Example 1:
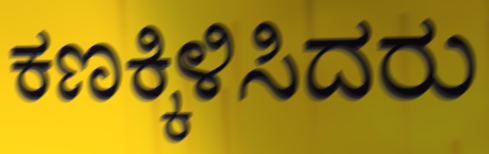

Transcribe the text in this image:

ಕಣಕ್ಕಿಳಿಸಿದರು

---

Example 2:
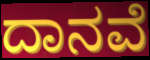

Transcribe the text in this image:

ದಾನವೆ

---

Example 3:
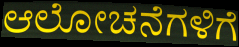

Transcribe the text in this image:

ಆಲೋಚನೆಗಳಿಗೆ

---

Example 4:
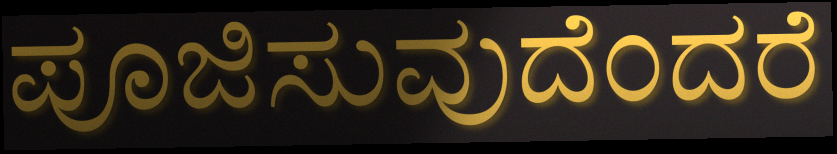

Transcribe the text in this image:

ಪೂಜಿಸುವುದೆಂದರೆ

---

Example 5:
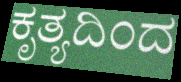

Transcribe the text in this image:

ಕೃತ್ಯದಿಂದ